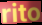
rito